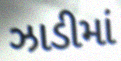
ઝાડીમાં